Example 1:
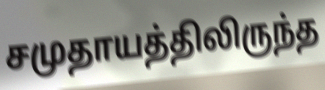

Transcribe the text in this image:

சமுதாயத்திலிருந்த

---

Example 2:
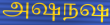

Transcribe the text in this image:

அஷநஷ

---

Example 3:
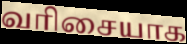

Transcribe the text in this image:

வரிசையாக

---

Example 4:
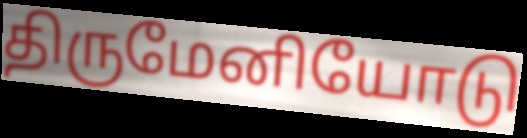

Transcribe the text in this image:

திருமேனியோடு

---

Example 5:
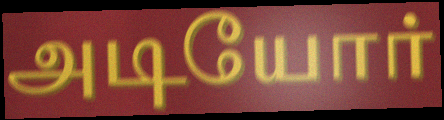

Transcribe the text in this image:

அடியோர்